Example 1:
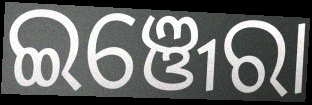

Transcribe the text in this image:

ଇଞ୍ଜେରା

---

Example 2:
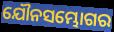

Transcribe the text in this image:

ଯୌନସମ୍ଭୋଗର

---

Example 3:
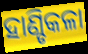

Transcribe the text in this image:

ହାଣ୍ଡିକଳା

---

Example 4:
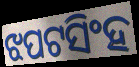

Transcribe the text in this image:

ଝପଟସିଂହ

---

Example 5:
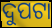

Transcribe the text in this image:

ଦୁପଟା